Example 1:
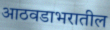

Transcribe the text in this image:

आठवडाभरातील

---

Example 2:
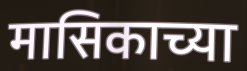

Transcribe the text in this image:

मासिकाच्या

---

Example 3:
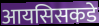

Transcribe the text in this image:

आयसिसकडे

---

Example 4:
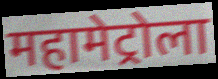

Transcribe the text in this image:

महामेट्रोला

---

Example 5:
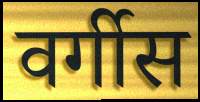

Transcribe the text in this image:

वर्गीस